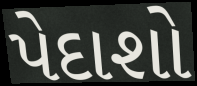
પેદાશો